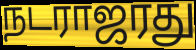
நடராஜரது